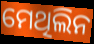
ମେଥିଲିନ